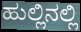
ಹುಲ್ಲಿನಲ್ಲಿ